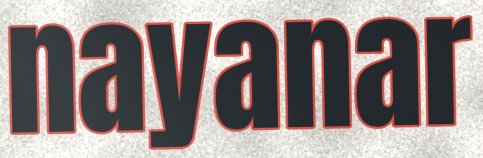
nayanar